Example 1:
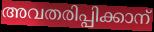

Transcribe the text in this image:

അവതരിപ്പിക്കാന്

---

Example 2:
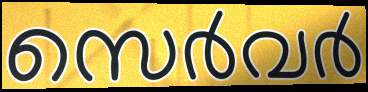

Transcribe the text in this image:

സെർവർ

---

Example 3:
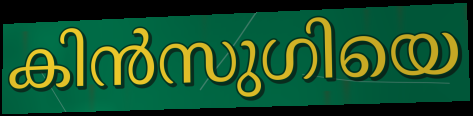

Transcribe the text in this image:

കിൻസുഗിയെ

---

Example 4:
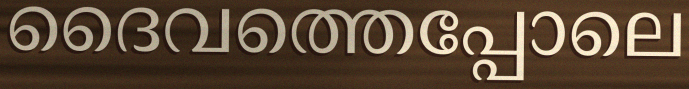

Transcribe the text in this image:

ദൈവത്തെപ്പോലെ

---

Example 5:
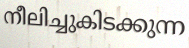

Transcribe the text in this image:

നീലിച്ചുകിടക്കുന്ന